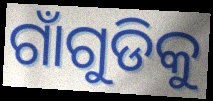
ଗାଁଗୁଡିକୁ